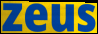
zeus